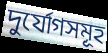
দুর্যোগসমূহ